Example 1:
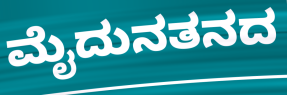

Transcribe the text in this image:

ಮೈದುನತನದ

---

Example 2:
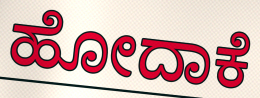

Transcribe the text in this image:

ಹೋದಾಕೆ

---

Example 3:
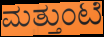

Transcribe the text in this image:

ಮತ್ತುಂಟೆ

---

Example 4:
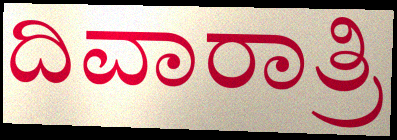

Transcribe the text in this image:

ದಿವಾರಾತ್ರಿ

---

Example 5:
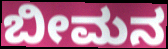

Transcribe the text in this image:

ಬೀಮನ